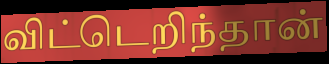
விட்டெறிந்தான்